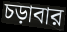
চড়াবার